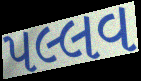
પલ્લવ